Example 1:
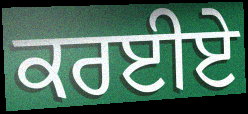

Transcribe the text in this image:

ਕਰਈਏ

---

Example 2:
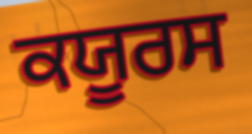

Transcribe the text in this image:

ਕਯੂਰਸ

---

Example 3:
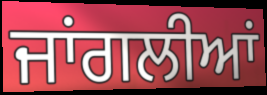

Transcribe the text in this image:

ਜਾਂਗਲੀਆਂ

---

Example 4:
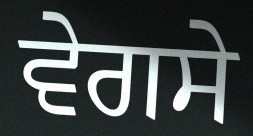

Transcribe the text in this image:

ਵੇਗਸੇ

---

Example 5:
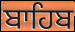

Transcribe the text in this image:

ਬਾਹਿਬ